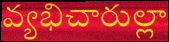
వ్యభిచారుల్లా